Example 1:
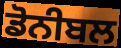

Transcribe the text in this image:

ਡੋਨੀਬਲ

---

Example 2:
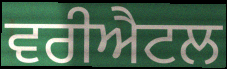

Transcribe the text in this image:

ਵਰੀਐਟਲ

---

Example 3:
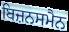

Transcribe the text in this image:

ਬਿਜ਼ਨਸਮੈਨ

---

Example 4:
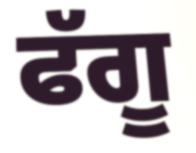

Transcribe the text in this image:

ਫੱਗੂ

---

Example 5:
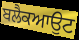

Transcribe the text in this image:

ਬਲੈਕਆਉਟ